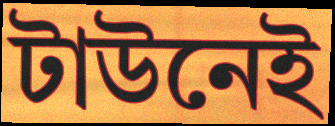
টাউনেই